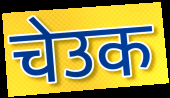
चेउक